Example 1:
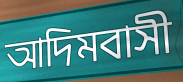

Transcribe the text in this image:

আদিমবাসী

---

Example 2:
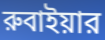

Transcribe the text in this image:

রুবাইয়ার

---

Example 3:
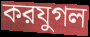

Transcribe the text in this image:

করযুগল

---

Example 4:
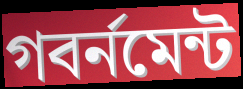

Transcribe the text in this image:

গবর্নমেন্ট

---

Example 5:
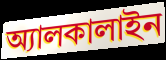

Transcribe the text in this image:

অ্যালকালাইন